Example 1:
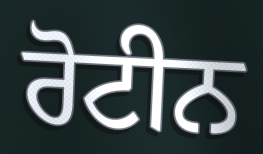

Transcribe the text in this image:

ਰੋਟੀਨ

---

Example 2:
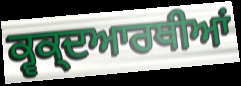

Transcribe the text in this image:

ਕ੍ਵਕ੍ਦਆਰਥੀਆਂ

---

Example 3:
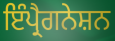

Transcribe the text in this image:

ਇੰਪ੍ਰੈਗਨੇਸ਼ਨ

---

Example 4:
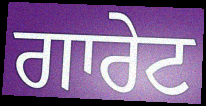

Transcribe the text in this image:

ਗਾਰੇਟ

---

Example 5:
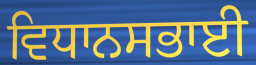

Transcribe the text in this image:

ਵਿਧਾਨਸਭਾਈ